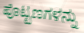
ಪೊಟ್ಟಣಗಳನ್ನು